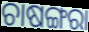
ଚାଷଙ୍ଗରା